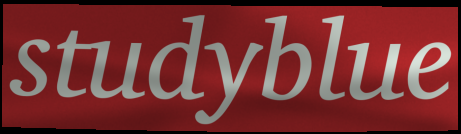
studyblue